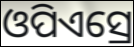
ଓପିଏସ୍ରେ